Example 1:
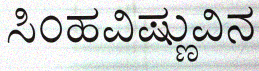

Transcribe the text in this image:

ಸಿಂಹವಿಷ್ಣುವಿನ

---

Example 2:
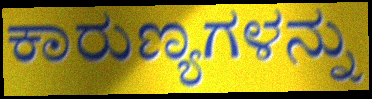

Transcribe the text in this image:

ಕಾರುಣ್ಯಗಳನ್ನು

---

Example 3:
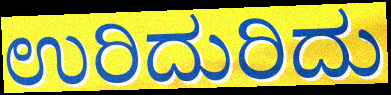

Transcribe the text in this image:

ಉರಿದುರಿದು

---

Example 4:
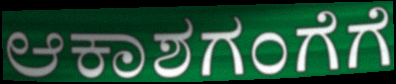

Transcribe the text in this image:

ಆಕಾಶಗಂಗೆಗೆ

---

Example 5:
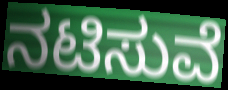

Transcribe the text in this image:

ನಟಿಸುವೆ